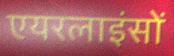
एयरलाइंसों